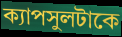
ক্যাপসুলটাকে